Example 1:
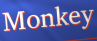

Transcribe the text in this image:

Monkey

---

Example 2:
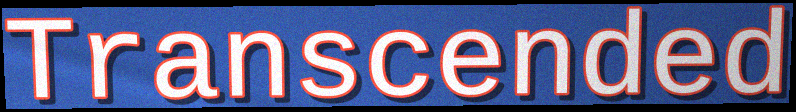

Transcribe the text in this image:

Transcended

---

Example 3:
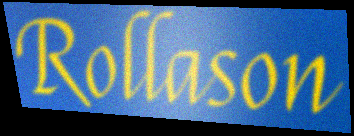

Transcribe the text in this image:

Rollason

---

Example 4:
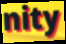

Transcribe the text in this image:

nity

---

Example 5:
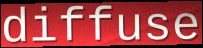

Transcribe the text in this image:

diffuse